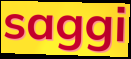
saggi